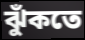
ঝুঁকতে